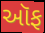
ઑફ